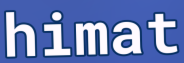
himat